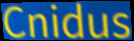
Cnidus